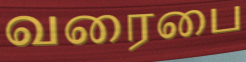
வரைபை